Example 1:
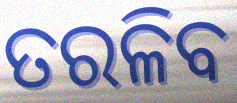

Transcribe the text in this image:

ତରଳିବ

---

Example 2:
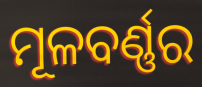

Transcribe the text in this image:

ମୂଳବର୍ଣ୍ଣର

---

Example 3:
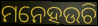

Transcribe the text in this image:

ମନେହଉଚି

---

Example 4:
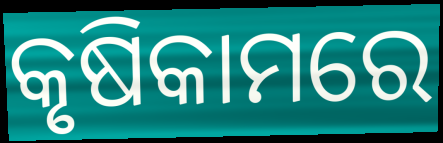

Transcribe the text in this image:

କୃଷିକାମରେ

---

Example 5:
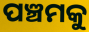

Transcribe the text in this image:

ପଞ୍ଚମକୁ